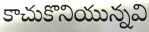
కాచుకొనియున్నవి